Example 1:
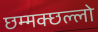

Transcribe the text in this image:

छम्मक्छल्लो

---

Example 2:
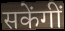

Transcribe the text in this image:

सकेंगीं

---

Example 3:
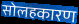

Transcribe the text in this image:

सोलहकारण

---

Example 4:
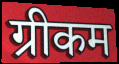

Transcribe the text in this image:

ग्रीकम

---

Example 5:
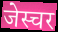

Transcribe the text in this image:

जेस्चर